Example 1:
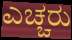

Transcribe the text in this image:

ಎಚ್ಚರು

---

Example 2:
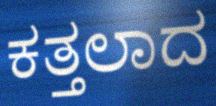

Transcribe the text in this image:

ಕತ್ತಲಾದ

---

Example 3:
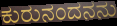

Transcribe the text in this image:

ಕುರುನಂದನನು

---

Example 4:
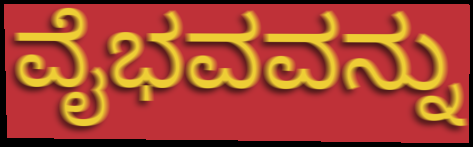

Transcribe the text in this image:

ವೈಭವವನ್ನು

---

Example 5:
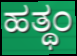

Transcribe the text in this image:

ಹತ್ಥಂ